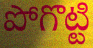
పోగొట్టి